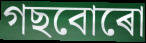
গছবোৰো